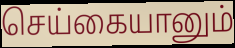
செய்கையானும்